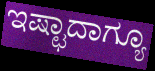
ಇಷ್ಟಾದಾಗ್ಯೂ